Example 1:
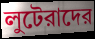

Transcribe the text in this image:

লুটেরাদের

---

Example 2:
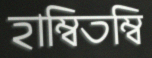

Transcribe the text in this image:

হাম্বিতম্বি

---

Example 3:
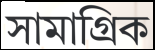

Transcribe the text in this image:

সামাগ্রিক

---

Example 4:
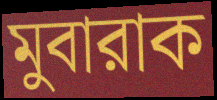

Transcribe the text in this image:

মুবারাক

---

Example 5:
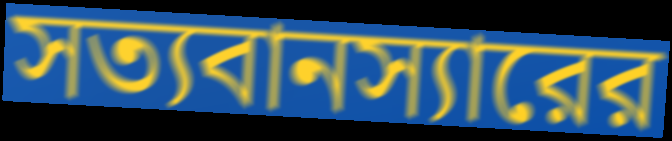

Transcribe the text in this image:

সত্যবানস্যারের